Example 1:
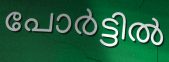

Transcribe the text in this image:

പോർട്ടിൽ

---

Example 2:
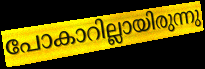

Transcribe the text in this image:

പോകാറില്ലായിരുന്നു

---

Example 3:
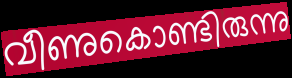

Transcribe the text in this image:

വീണുകൊണ്ടിരുന്നു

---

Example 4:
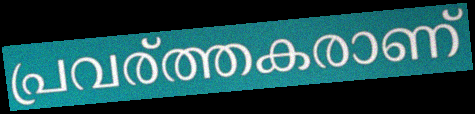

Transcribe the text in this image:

പ്രവര്ത്തകരാണ്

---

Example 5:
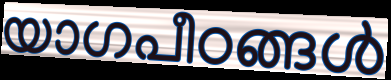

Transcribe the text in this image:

യാഗപീഠങ്ങൾ